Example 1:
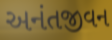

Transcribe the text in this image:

અનંતજીવન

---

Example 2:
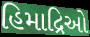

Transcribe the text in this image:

હિમાદ્રિઓ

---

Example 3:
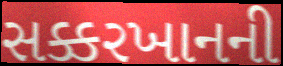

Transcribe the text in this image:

સક્કરખાનની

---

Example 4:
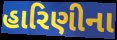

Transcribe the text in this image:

હારિણીના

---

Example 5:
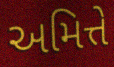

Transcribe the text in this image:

અમિત્તે